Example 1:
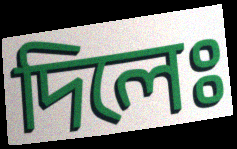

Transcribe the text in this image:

দিলেঃ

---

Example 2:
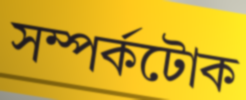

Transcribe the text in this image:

সম্পৰ্কটোক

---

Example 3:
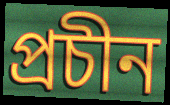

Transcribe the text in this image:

প্ৰচীন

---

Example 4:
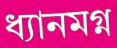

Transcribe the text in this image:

ধ্যানমগ্ন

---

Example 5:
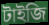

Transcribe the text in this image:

টাইজি